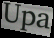
Upa